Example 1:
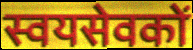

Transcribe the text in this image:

स्वयसेवकों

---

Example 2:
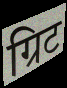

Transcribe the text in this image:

ग्रिट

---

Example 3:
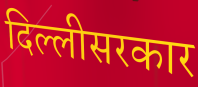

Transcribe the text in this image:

दिल्लीसरकार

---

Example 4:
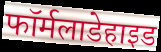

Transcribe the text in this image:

फॉर्मलाडेहाइड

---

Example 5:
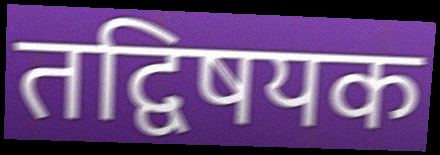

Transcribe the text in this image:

तद्विषयक